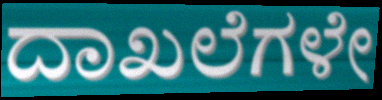
ದಾಖಲೆಗಳೇ